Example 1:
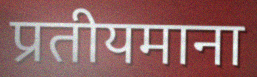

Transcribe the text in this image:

प्रतीयमाना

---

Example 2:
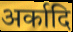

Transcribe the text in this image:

अर्कादि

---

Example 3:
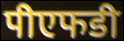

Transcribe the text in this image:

पीएफडी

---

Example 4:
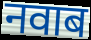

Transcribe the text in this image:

नवाब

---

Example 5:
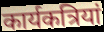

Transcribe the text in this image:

कार्यकत्रियां